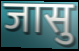
जासु